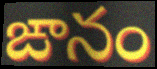
ఙానం